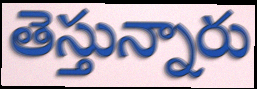
తెస్తున్నారు